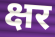
क्षर